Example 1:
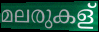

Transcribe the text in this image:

മലരുകള്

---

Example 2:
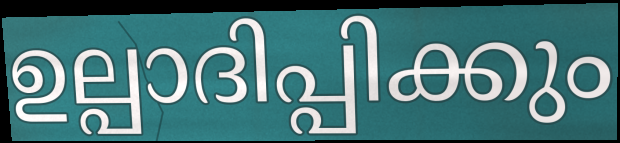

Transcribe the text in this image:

ഉല്പാദിപ്പിക്കും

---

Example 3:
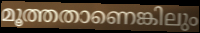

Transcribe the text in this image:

മൂത്തതാണെങ്കിലും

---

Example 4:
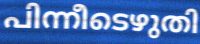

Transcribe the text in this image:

പിന്നീടെഴുതി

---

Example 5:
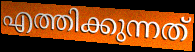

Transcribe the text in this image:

എത്തിക്കുന്നത്